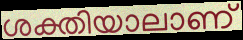
ശക്തിയാലാണ്